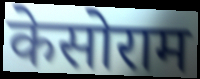
केसोराम